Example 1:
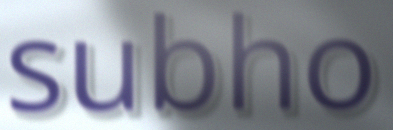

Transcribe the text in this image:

subho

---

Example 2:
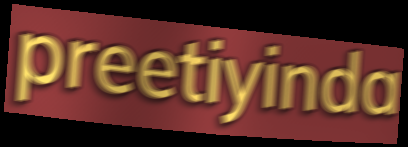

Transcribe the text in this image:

preetiyinda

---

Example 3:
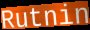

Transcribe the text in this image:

Rutnin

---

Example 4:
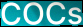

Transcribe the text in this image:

COCs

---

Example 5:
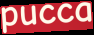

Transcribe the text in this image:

pucca